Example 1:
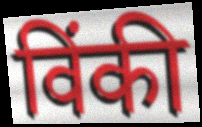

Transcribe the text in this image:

विंकी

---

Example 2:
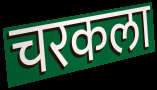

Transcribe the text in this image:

चरकला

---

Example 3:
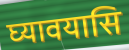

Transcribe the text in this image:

घ्यावयासि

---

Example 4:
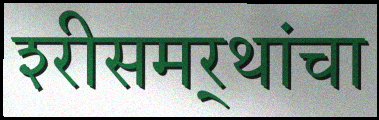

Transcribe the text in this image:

श्रीसमर्थांचा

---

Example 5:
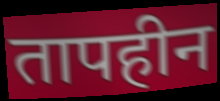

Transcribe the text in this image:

तापहीन